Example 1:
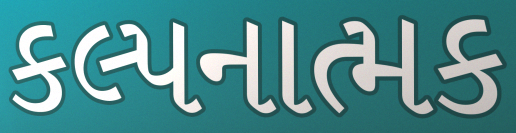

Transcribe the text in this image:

કલ્પનાત્મક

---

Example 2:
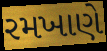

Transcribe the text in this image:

રમખાણે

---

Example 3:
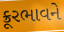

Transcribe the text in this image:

ક્રૂરભાવને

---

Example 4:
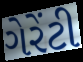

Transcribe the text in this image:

ગેરેંટી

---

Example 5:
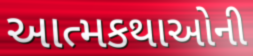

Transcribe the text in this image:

આત્મકથાઓની